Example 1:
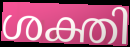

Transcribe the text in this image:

ശക്തി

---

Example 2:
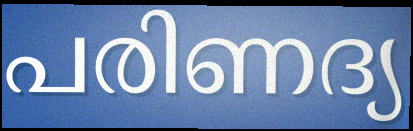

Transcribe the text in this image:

പരിണദ്യ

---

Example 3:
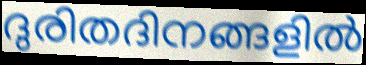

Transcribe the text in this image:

ദുരിതദിനങ്ങളിൽ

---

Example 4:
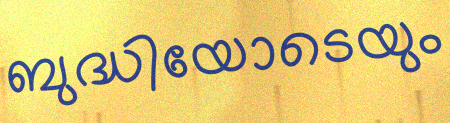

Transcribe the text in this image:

ബുദ്ധിയോടെയും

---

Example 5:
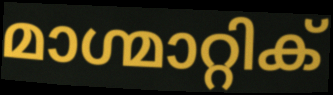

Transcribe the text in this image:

മാഗ്മാറ്റിക്